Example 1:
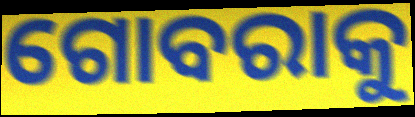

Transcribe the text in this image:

ଗୋବରାକୁ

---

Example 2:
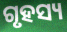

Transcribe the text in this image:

ଗୃହସ୍ୟ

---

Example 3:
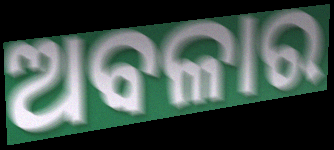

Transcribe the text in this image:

ଅବଳାର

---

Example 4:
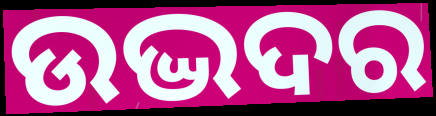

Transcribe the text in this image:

ଉଦ୍ଭଦର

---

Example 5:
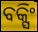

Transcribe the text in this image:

ବକ୍ସିଂ